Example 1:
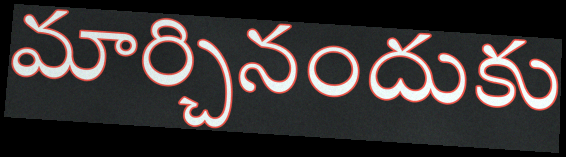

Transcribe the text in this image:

మార్చినందుకు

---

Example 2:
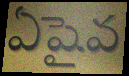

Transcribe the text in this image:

ఏషైవ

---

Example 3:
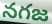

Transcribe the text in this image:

నగజ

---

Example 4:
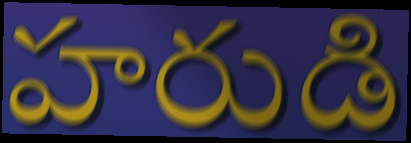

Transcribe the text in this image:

హరుడి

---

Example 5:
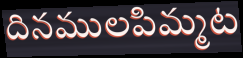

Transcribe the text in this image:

దినములపిమ్మట